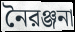
নৈরঞ্জনা